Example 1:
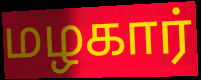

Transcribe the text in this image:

மழகார்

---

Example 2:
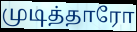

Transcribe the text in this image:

முடித்தாரோ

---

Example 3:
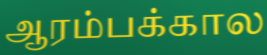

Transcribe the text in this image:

ஆரம்பக்கால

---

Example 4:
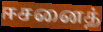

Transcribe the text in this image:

ஈசனைத்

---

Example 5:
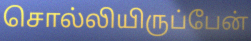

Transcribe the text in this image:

சொல்லியிருப்பேன்